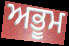
ਅਭੂਮ